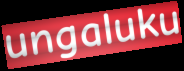
ungaluku